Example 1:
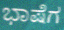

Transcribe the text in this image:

ಭಾಷೆಗ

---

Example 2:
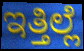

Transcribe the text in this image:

ಇತ್ತಿಲ್ಲೆ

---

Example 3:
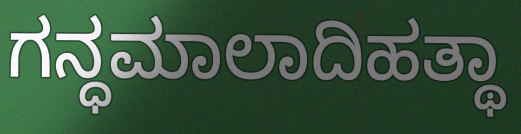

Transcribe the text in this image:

ಗನ್ಧಮಾಲಾದಿಹತ್ಥಾ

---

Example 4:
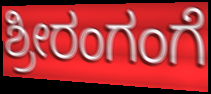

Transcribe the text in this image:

ಶ್ರೀರಂಗಂಗೆ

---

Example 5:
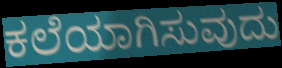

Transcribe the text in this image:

ಕಲೆಯಾಗಿಸುವುದು